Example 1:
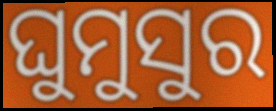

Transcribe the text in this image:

ଘୁମୁସୁର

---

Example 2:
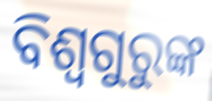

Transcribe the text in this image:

ବିଶ୍ୱଗୁରୁଙ୍କ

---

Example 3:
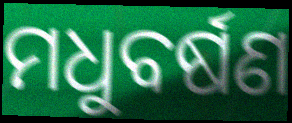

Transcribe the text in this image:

ମଧୁବର୍ଷଣ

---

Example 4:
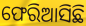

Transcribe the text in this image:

ଫେରିଆସିଛି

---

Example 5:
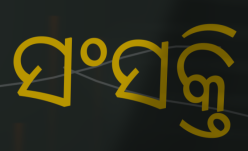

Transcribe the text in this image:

ସଂସକ୍ତି